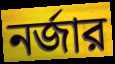
নর্জার